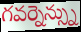
గవర్నెన్స్ను